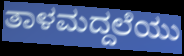
ತಾಳಮದ್ದಲೆಯು